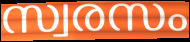
സ്വരസം